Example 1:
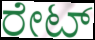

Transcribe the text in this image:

ರೇಟ್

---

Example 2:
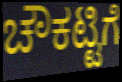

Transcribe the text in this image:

ಚೌಕಟ್ಟಿಗೆ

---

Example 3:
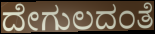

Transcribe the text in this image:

ದೇಗುಲದಂತೆ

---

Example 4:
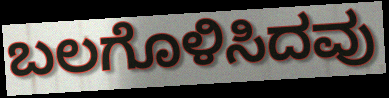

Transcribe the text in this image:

ಬಲಗೊಳಿಸಿದವು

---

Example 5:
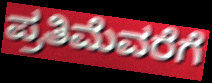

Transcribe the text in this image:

ಪ್ರತಿಮೆವರೆಗೆ